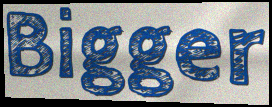
Bigger